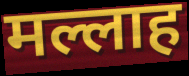
मल्लाह